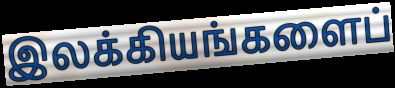
இலக்கியங்களைப்